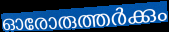
ഓരോരുത്തർക്കും